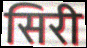
सिरी